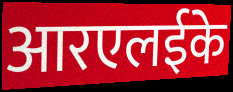
आरएलईके